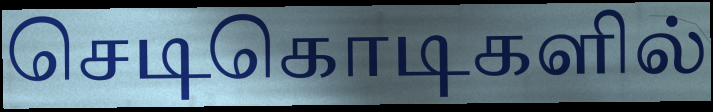
செடிகொடிகளில்